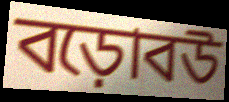
বড়োবউ